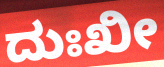
ದುಃಖೀ